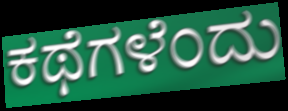
ಕಥೆಗಳೆಂದು